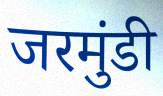
जरमुंडी